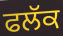
ਫਲੱਕ